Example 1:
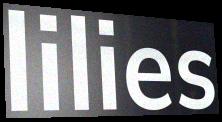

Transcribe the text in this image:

lilies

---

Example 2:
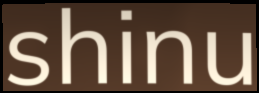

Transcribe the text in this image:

shinu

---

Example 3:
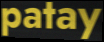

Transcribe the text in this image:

patay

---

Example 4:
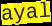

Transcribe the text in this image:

ayal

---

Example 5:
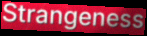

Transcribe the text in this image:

Strangeness